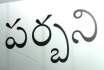
పర్బని